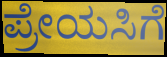
ಪ್ರೇಯಸಿಗೆ